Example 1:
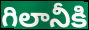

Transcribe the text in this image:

గిలానీకి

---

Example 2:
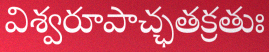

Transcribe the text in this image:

విశ్వరూపాచ్ఛతక్రతుః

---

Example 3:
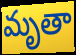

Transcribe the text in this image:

మృతా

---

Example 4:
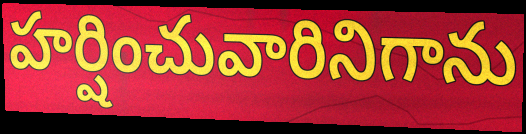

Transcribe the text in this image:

హర్షించువారినిగాను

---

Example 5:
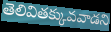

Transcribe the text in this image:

తెలివితక్కువవాడని